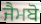
ਜੈਮਬੋ